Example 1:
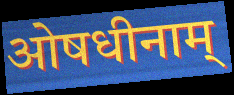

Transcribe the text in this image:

ओषधीनाम्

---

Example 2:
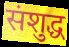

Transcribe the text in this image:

संशुद्ध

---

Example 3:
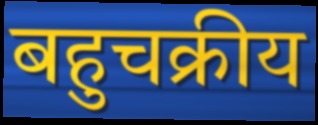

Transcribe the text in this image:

बहुचक्रीय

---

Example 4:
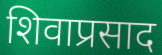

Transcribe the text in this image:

शिवाप्रसाद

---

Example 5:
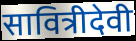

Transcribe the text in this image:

सावित्रीदेवी